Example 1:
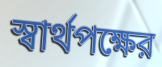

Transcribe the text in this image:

স্বার্থপক্ষের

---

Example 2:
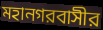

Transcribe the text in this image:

মহানগরবাসীর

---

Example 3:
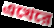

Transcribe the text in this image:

এখেরে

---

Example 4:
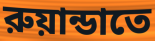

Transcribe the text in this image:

রুয়ান্ডাতে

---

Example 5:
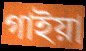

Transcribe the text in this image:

গাইয়া